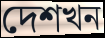
দেশখন